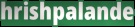
hrishpalande